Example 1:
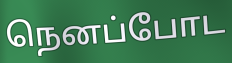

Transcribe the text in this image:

நெனப்போட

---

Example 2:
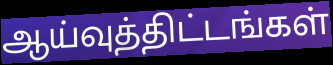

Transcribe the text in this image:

ஆய்வுத்திட்டங்கள்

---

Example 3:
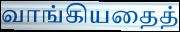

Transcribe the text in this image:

வாங்கியதைத்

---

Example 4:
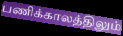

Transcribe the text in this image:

பணிக்காலத்திலும்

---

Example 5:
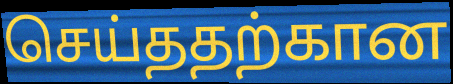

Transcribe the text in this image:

செய்ததற்கான